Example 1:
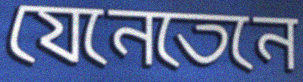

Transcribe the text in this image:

যেনেতেনে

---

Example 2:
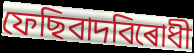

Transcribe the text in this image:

ফেছিবাদবিৰোধী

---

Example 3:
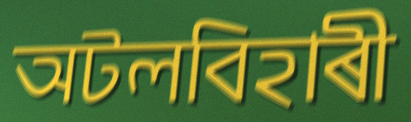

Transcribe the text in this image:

অটলবিহাৰী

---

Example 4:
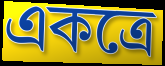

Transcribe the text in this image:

একত্ৰে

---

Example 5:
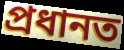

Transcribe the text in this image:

প্ৰধানত